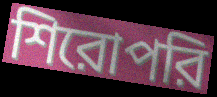
শিরোপরি